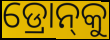
ଡ୍ରୋନ୍‌କୁ